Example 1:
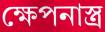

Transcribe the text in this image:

ক্ষেপনাস্ত্র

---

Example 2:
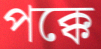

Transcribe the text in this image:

পক্কে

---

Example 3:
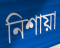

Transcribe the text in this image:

নিশায়া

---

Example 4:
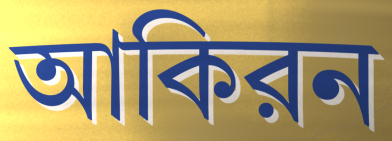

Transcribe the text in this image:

আকিরন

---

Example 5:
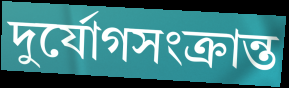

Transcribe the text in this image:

দুর্যোগসংক্রান্ত